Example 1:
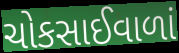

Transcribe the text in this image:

ચોકસાઈવાળાં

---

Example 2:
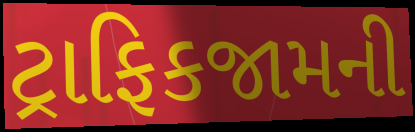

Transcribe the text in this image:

ટ્રાફિકજામની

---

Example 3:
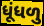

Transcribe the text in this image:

ધૂંધળુ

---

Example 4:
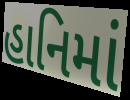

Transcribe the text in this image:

હાનિમાં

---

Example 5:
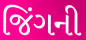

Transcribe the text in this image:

જિંગની